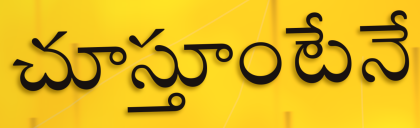
చూస్తూంటేనే